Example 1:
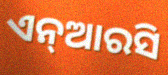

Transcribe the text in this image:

ଏନ୍ଆରସି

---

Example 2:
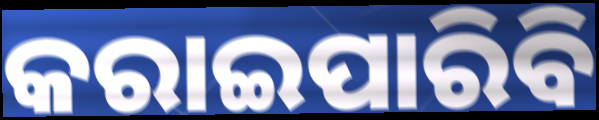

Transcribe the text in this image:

କରାଇପାରିବି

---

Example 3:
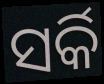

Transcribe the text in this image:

ସର୍କି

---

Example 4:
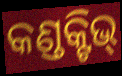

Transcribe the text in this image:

କଣ୍ଡକ୍ଟିଭ୍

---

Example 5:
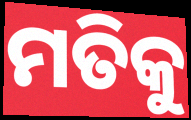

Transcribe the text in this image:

ମତିକୁ